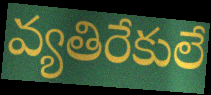
వ్యతిరేకులే